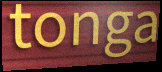
tonga